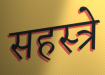
सहस्त्रे